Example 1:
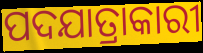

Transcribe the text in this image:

ପଦଯାତ୍ରାକାରୀ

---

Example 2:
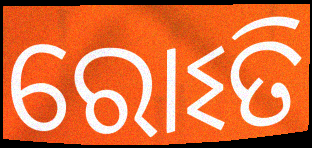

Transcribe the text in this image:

ରୋଽତି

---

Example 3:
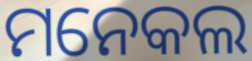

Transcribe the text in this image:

ମନେକଲ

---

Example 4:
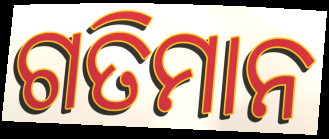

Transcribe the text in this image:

ଗତିମାନ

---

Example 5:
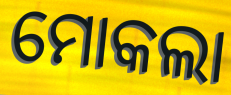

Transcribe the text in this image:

ମୋକଲା